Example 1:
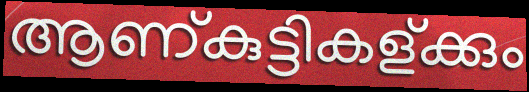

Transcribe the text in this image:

ആണ്കുട്ടികള്ക്കും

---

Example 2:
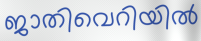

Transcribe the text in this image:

ജാതിവെറിയിൽ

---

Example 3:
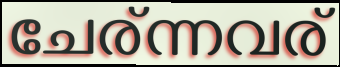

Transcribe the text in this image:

ചേര്ന്നവര്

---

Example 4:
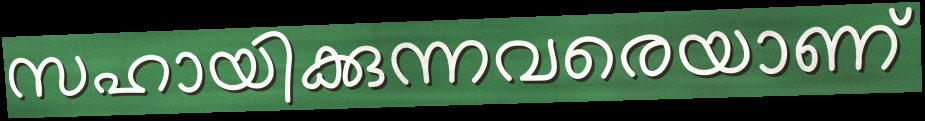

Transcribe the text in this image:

സഹായിക്കുന്നവരെയാണ്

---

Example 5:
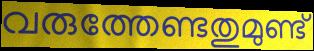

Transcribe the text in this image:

വരുത്തേണ്ടതുമുണ്ട്